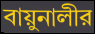
বায়ুনালীর